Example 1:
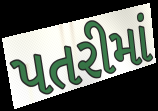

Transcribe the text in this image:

પતરીમાં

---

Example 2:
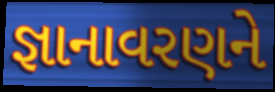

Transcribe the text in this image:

જ્ઞાનાવરણને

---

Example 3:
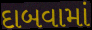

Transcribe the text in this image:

દાબવામાં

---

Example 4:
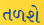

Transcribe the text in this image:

તળશે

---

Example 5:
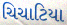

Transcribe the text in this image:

ચિચાટિયા